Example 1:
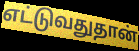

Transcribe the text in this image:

எட்டுவதுதான்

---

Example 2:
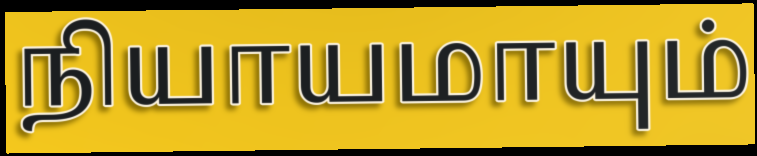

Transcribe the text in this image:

நியாயமாயும்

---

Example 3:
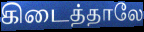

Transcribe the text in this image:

கிடைத்தாலே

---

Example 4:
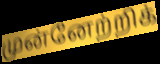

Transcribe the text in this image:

முன்னேற்றிக்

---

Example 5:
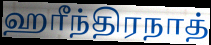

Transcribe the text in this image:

ஹரீந்திரநாத்